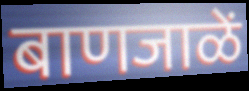
बाणजाळें